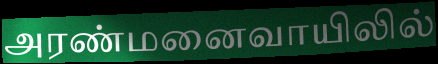
அரண்மனைவாயிலில்